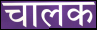
चालक